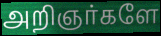
அறிஞர்களே